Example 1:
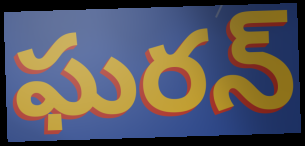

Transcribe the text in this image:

ఘరన్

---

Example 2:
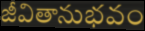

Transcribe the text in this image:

జీవితానుభవం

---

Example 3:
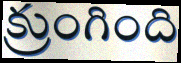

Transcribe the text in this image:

క్రుంగింది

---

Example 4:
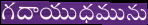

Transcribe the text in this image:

గదాయుధమును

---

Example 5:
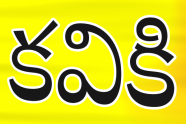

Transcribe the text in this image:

కవికి